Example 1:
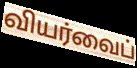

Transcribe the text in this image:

வியர்வைப்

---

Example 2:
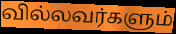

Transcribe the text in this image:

வில்லவர்களும்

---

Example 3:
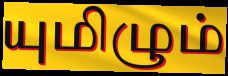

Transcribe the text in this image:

யுமிழும்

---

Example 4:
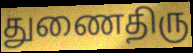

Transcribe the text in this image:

துணைதிரு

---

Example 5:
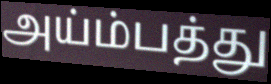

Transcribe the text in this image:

அய்ம்பத்து